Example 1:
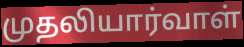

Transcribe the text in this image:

முதலியார்வாள்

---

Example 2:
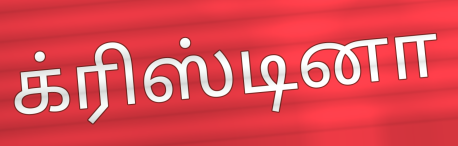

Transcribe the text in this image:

க்ரிஸ்டினா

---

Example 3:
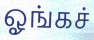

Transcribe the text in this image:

ஓங்கச்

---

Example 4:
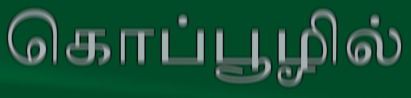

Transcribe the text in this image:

கொப்பூழில்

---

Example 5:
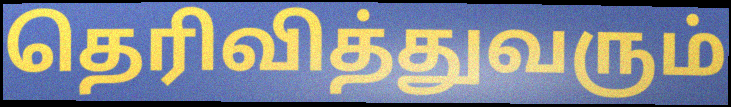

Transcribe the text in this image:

தெரிவித்துவரும்